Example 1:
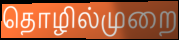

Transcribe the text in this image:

தொழில்முறை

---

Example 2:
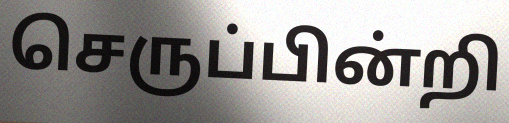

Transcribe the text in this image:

செருப்பின்றி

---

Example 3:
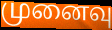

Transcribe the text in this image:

முனைவு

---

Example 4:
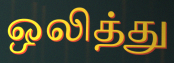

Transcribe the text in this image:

ஒலித்து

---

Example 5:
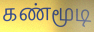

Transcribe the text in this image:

கண்மூடி